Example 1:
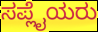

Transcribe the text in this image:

ಸಪ್ಲೈಯರು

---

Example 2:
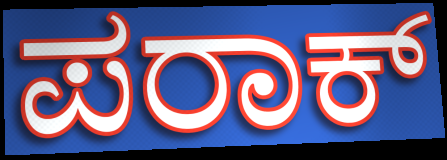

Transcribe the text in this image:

ಪರಾಕ್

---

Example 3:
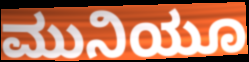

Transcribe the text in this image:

ಮುನಿಯೂ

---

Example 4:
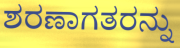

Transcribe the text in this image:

ಶರಣಾಗತರನ್ನು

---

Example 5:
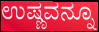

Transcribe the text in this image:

ಉಷ್ಣವನ್ನೂ